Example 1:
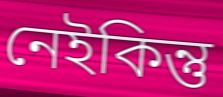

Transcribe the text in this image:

নেইকিন্তু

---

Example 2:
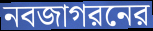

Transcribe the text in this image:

নবজাগরনের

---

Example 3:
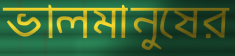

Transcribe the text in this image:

ভালমানুষের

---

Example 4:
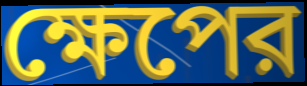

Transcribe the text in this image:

ক্ষেপের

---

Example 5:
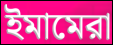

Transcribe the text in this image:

ইমামেরা